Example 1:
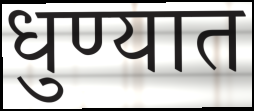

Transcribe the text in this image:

धुण्यात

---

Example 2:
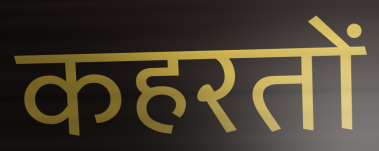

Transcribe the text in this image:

कहरतों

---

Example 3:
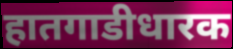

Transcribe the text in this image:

हातगाडीधारक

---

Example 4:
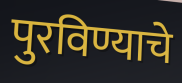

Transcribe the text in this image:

पुरविण्याचे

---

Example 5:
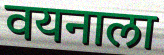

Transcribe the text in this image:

वयनाला